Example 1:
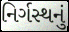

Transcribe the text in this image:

નિર્ગસ્થનું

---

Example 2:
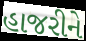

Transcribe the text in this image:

હાજરીને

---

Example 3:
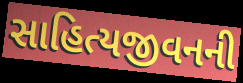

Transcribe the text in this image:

સાહિત્યજીવનની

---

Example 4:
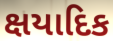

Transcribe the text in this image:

ક્ષયાદિક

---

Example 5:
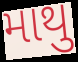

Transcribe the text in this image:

માથુ